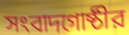
সংবাদগোষ্ঠীর